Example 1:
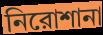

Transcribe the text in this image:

নিরোশানা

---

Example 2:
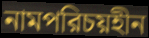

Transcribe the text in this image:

নামপরিচয়হীন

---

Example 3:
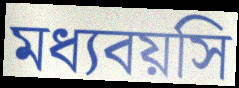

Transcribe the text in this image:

মধ্যবয়সি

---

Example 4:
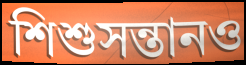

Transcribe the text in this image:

শিশুসন্তানও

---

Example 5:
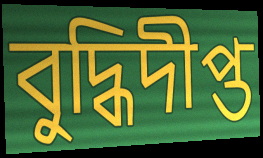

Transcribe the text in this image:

বুদ্ধিদীপ্ত